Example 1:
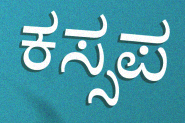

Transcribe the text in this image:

ಕಸ್ಸಪ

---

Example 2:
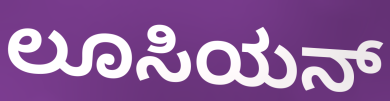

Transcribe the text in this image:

ಲೂಸಿಯನ್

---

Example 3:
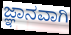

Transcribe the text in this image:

ಜ್ಞಾನವಾಗಿ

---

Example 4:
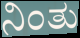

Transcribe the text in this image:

ನಿಂತು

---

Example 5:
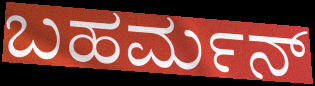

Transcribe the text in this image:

ಬಹರ್ಮನ್